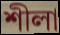
শীলা